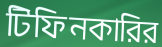
টিফিনকারির